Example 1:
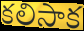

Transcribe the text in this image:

కలిసాక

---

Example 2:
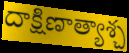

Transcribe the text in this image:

దాక్షిణాత్యాశ్చ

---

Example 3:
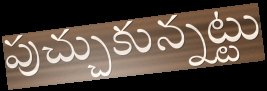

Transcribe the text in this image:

పుచ్చుకున్నట్టు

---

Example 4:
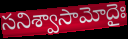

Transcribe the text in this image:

సనిశ్వాసామోదైః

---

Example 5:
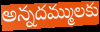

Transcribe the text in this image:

అన్నదమ్ములకు